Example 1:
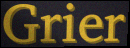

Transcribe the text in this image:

Grier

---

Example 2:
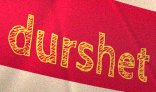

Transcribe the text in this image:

durshet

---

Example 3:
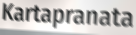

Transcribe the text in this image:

Kartapranata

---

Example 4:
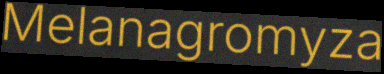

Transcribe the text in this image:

Melanagromyza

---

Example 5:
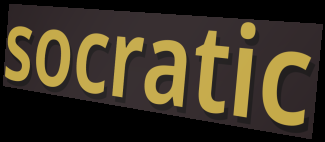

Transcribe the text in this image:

socratic